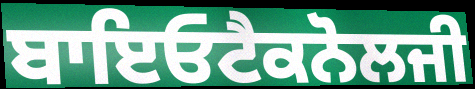
ਬਾਇਓਟੈਕਨੋਲਜੀ